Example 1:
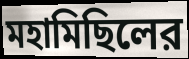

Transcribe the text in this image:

মহামিছিলের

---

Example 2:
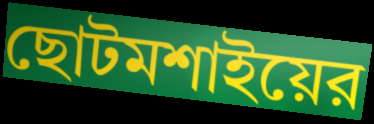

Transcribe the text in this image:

ছোটমশাইয়ের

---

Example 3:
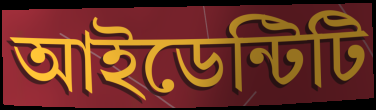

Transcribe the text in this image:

আইডেন্টিটি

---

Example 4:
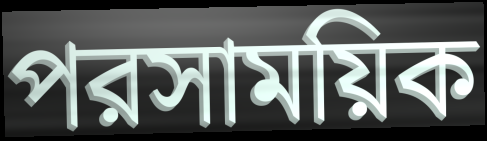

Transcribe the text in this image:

পরসাময়িক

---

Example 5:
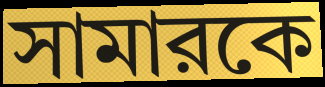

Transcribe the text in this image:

সামারকে